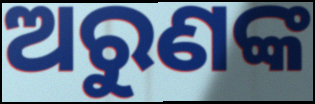
ଅରୁଣଙ୍କ